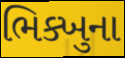
ભિક્ખુના